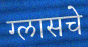
ग्लासचे